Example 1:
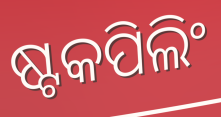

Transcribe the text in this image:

ଷ୍ଟକପିଲିଂ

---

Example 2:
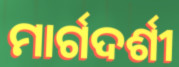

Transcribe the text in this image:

ମାର୍ଗଦର୍ଶୀ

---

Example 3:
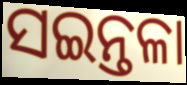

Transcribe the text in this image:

ସଇନ୍ତଳା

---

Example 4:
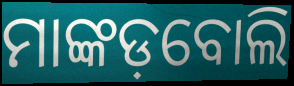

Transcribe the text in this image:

ମାଙ୍କଡ଼ବୋଲି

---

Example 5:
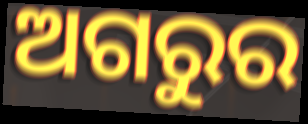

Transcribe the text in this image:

ଅଗରୁର